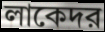
লাকেদর